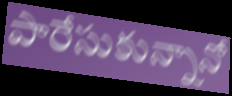
పారేసుకున్నానో